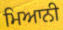
ਮਿਆਨੀ